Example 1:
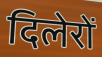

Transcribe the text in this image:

दिलेरों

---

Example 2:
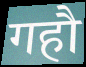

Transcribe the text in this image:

गहौ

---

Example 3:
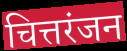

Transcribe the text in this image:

चित्तरंजन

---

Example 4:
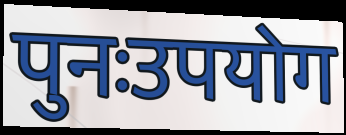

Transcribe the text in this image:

पुनःउपयोग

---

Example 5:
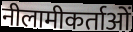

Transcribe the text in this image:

नीलामीकर्ताओं